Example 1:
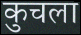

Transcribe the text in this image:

कुचला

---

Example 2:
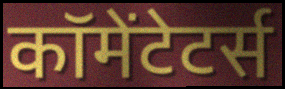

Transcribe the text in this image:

कॉमेंटेटर्स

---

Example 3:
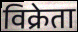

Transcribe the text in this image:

विक्रेता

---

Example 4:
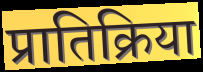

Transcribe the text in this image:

प्रातिक्रिया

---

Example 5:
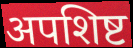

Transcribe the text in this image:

अपशिष्ट